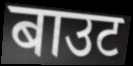
बाउट